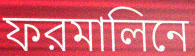
ফরমালিনে